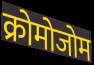
क्रोमोजोम